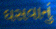
ઘસવાનું